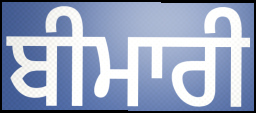
ਬੀਮਾਰੀ